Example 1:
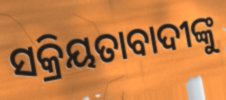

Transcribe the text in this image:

ସକ୍ରିୟତାବାଦୀଙ୍କୁ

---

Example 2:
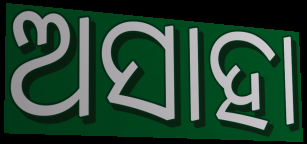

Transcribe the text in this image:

ଅସାହା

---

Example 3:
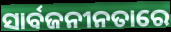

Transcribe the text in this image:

ସାର୍ବଜନୀନତାରେ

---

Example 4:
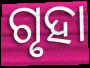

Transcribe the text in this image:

ଗୃହା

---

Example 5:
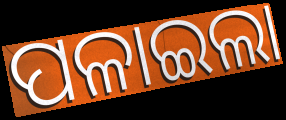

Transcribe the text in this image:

ପଳାଇଲା